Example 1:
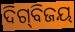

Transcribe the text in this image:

ଦିଗ୍‌ବିଜୟ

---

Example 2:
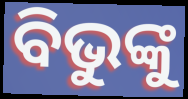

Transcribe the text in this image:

ବିଭୁଙ୍କୁ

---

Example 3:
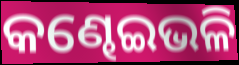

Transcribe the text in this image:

କଣ୍ଢେଇଭଳି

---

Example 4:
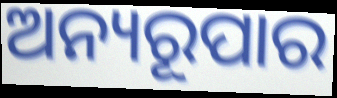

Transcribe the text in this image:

ଅନ୍ୟରୂପାର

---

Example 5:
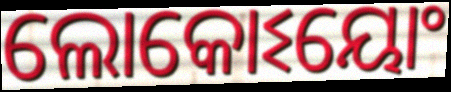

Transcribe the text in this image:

ଲୋକୋଽୟୋଂ